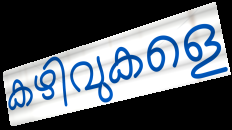
കഴിവുകളെ